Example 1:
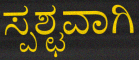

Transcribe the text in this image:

ಸ್ಪಶ್ಟವಾಗಿ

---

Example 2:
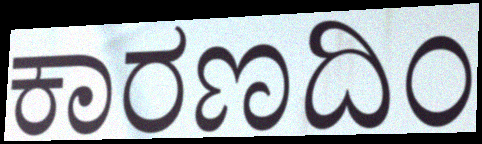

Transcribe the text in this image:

ಕಾರಣದಿಂ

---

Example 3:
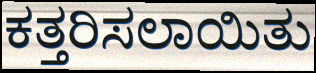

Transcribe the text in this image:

ಕತ್ತರಿಸಲಾಯಿತು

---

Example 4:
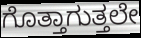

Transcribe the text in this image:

ಗೊತ್ತಾಗುತ್ತಲೇ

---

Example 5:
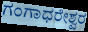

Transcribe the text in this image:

ಗಂಗಾಧರೇಶ್ವರ